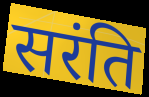
सरंति